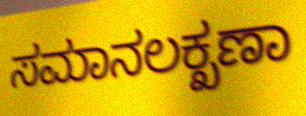
ಸಮಾನಲಕ್ಖಣಾ